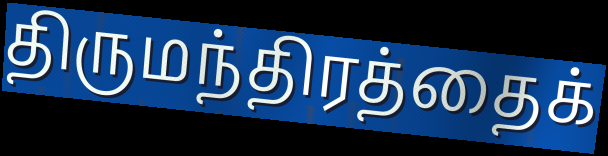
திருமந்திரத்தைக்